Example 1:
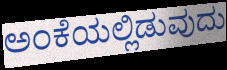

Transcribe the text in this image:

ಅಂಕೆಯಲ್ಲಿಡುವುದು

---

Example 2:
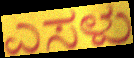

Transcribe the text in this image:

ಎಸಳು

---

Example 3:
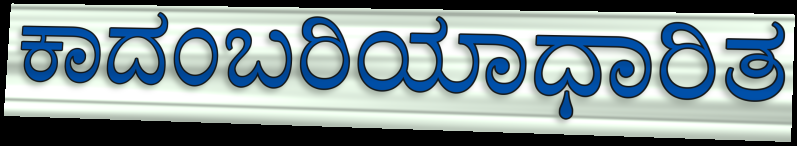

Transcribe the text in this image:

ಕಾದಂಬರಿಯಾಧಾರಿತ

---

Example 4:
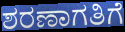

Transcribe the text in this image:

ಶರಣಾಗತಿಗೆ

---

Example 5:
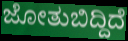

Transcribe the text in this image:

ಜೋತುಬಿದ್ದಿದೆ